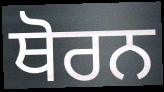
ਥੋਰਨ